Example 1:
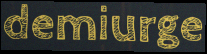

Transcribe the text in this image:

demiurge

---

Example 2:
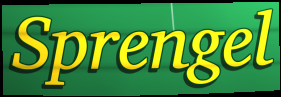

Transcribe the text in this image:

Sprengel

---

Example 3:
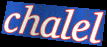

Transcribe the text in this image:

chalel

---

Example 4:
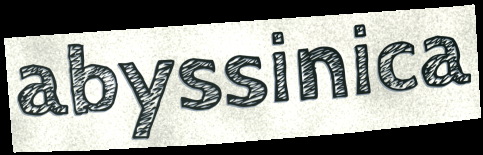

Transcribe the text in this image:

abyssinica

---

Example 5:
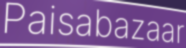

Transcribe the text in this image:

Paisabazaar